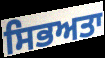
ਸਿਭਅਤਾ